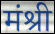
मंश्री